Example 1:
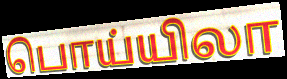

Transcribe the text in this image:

பொய்யிலா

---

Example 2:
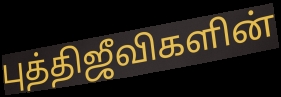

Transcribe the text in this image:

புத்திஜீவிகளின்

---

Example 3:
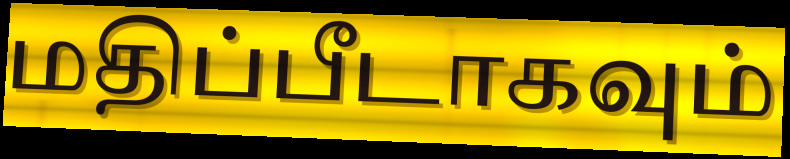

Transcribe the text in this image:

மதிப்பீடாகவும்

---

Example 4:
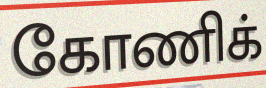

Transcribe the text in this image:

கோணிக்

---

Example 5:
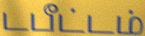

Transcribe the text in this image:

டபீட்டம்